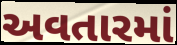
અવતારમાં